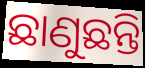
ଛାଣୁଛନ୍ତି